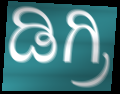
ಡಿಗ್ರಿ